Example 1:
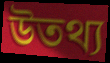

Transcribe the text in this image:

উতথ্য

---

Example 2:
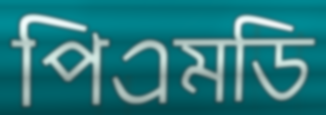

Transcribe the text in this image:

পিএমডি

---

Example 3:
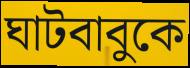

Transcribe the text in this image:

ঘাটবাবুকে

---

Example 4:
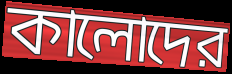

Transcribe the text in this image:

কালোদের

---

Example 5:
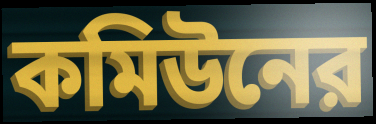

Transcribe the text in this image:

কমিউনের